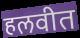
हलवीत